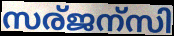
സര്ജന്സി